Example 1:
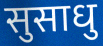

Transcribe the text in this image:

सुसाधु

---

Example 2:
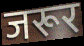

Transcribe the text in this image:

जरूर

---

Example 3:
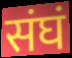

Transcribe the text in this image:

संघं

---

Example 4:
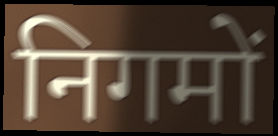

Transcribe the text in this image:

निगमों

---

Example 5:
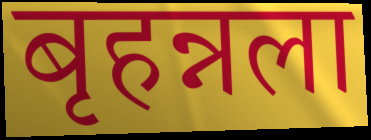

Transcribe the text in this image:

बृहन्नला